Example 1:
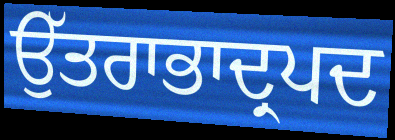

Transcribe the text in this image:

ਉੱਤਰਾਭਾਦ੍ਰਪਦ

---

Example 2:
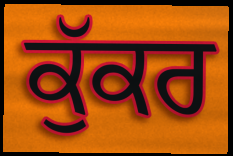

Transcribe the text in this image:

ਕੁੱਕਰ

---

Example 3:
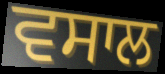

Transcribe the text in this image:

ਵਸਾਲ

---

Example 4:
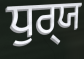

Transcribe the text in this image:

ਧੁਰ੍‍ਯ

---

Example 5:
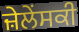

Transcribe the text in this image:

ਜ਼ੇਲੇਂਸਕੀ